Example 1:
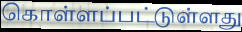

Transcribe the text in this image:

கொள்ளப்பட்டுள்ளது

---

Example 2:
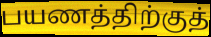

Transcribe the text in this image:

பயணத்திற்குத்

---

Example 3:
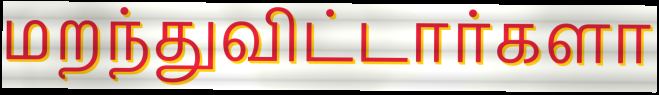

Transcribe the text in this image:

மறந்துவிட்டார்களா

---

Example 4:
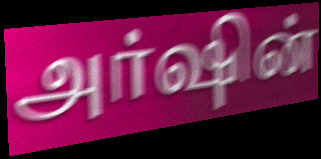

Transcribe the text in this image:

அர்ஷின்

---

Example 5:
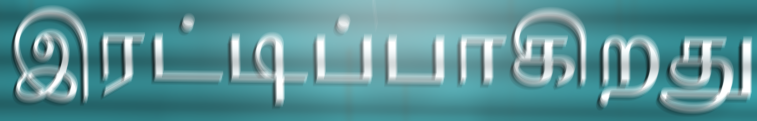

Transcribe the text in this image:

இரட்டிப்பாகிறது